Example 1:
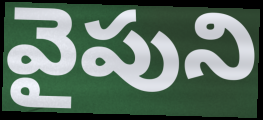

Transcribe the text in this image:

వైపుని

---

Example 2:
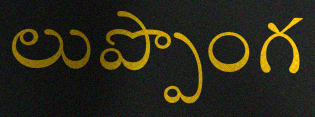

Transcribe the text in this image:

లుప్పొంగ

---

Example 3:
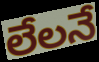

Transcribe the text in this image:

లేలనే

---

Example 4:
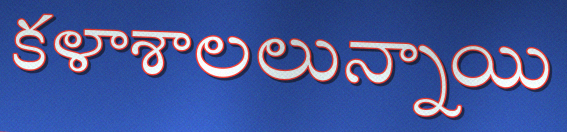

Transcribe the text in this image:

కళాశాలలున్నాయి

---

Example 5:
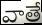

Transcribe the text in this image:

వాతే